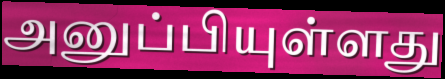
அனுப்பியுள்ளது